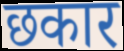
छकार